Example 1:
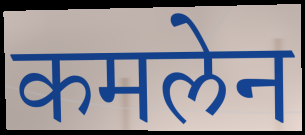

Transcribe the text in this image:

कमलेन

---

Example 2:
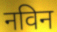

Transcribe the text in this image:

नविन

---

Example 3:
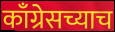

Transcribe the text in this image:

काँग्रेसच्याच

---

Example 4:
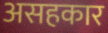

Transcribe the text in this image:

असहकार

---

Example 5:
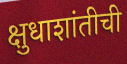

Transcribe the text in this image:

क्षुधाशांतीची